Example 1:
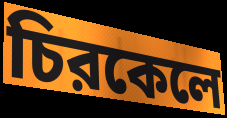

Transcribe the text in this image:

চিরকেলে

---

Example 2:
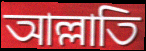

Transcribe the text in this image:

আল্লাতি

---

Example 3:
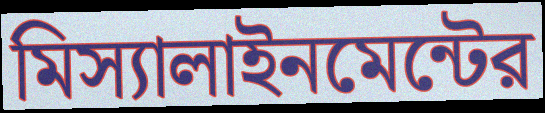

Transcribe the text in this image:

মিস্যালাইনমেন্টের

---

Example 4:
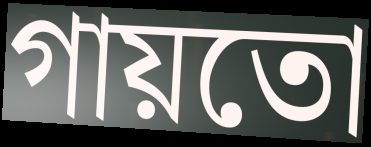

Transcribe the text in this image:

গায়তো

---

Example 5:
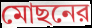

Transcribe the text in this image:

মোছনের